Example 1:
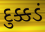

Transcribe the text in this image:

દુક્કડં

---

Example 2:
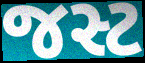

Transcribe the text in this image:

જસ્ટ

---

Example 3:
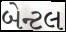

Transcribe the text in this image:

બેન્ટલ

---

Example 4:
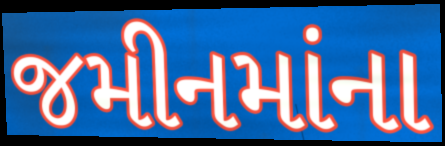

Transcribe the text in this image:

જમીનમાંના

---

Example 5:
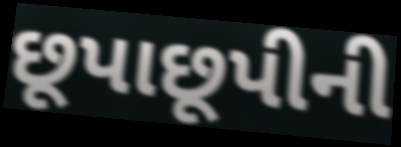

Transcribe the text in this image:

છૂપાછૂપીની